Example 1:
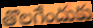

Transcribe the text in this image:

తొలగేందుకు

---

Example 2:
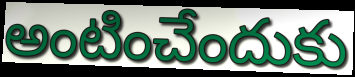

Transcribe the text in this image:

అంటించేందుకు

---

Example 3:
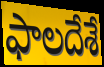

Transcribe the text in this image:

ఫాలదేశే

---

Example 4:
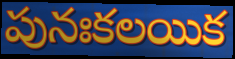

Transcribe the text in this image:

పునఃకలయిక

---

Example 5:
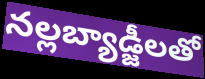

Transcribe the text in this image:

నల్లబ్యాడ్జీలతో